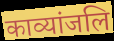
काव्यांजलि